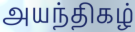
அயந்திகழ்